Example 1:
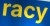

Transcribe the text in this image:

racy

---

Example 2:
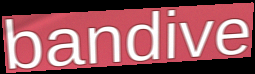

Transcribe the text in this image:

bandive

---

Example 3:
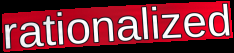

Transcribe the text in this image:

rationalized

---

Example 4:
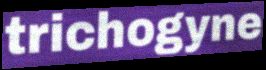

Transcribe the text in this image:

trichogyne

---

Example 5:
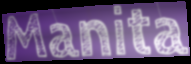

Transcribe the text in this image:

Manita